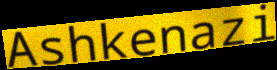
Ashkenazi